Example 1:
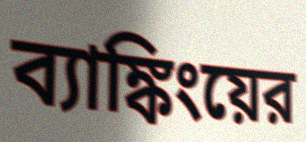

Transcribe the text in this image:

ব্যাঙ্কিংয়ের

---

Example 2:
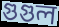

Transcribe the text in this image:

গুগুল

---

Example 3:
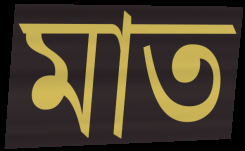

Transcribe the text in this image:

মাত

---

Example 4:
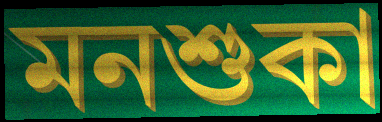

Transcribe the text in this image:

মনশুকা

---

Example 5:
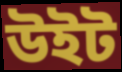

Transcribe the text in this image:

উইট